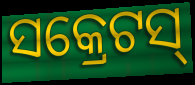
ସକ୍ରେଟସ୍